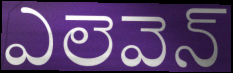
ఎలెవెన్